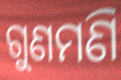
ଗୁଣମଣି